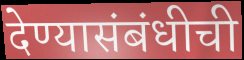
देण्यासंबंधीची